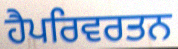
ਹੈਪਰਿਵਰਤਨ